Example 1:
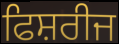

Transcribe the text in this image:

ਫਿਸ਼ਰੀਜ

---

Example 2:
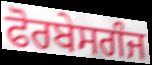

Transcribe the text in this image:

ਫੋਰਬੇਸਗੰਜ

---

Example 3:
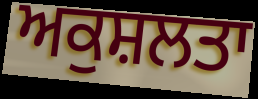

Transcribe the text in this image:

ਅਕੁਸ਼ਲਤਾ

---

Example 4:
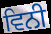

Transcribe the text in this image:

ਵਿਨੀ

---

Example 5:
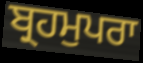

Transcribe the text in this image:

ਬ੍ਰਹਮੁਪਰਾ